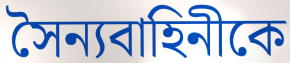
সৈন্যবাহিনীকে